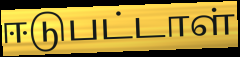
ஈடுபட்டாள்